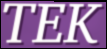
TEK